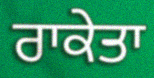
ਰਾਕੇਤਾ